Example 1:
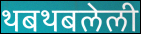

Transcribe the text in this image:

थबथबलेली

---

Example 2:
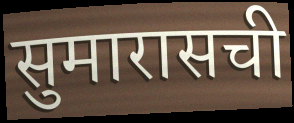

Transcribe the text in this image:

सुमारासची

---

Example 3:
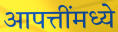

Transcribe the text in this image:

आपत्तींमध्ये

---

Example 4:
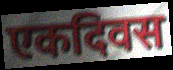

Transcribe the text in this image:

एकदिवस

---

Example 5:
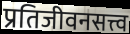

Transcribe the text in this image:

प्रतिजीवनसत्त्व